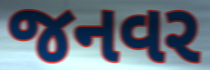
જનવર